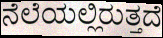
ನೆಲೆಯಲ್ಲಿರುತ್ತದೆ